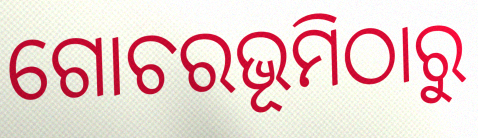
ଗୋଚରଭୂମିଠାରୁ